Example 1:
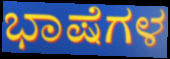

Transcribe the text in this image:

ಭಾಷೆಗಳ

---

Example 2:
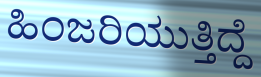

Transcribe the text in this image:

ಹಿಂಜರಿಯುತ್ತಿದ್ದೆ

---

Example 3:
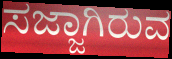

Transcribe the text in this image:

ಸಜ್ಜಾಗಿರುವ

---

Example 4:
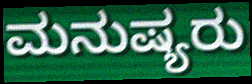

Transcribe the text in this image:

ಮನುಷ್ಯರು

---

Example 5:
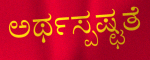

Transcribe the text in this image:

ಅರ್ಥಸ್ಪಷ್ಟತೆ